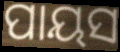
ପାୟସ